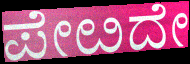
ಪೇೞದೇ